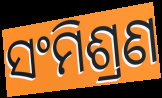
ସଂମିଶ୍ରଣ